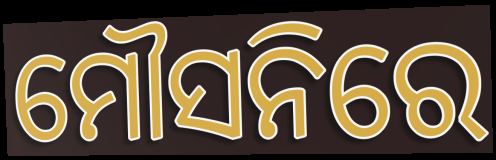
ମୌସନିରେ